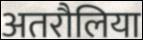
अतरौलिया